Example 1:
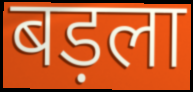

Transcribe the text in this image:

बड़ला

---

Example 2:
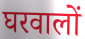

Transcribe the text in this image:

घरवालों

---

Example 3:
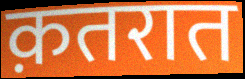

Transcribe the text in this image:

क़तरात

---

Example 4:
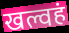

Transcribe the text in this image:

खल्वहं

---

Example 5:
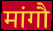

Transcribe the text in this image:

मांगौ